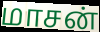
மாசன்